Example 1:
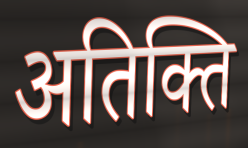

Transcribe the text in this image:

अतिक्ति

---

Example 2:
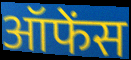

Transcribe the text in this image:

ऑफेंस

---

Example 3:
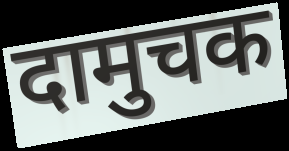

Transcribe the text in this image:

दामुचक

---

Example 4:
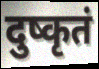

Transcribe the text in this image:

दुष्कृतं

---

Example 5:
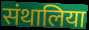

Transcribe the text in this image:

संथालिया